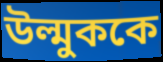
উল্মুককে